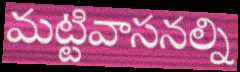
మట్టివాసనల్ని